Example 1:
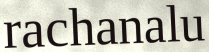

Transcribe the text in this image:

rachanalu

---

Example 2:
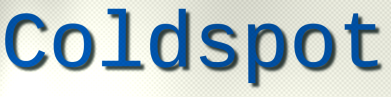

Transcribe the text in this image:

Coldspot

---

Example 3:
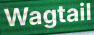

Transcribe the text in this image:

Wagtail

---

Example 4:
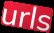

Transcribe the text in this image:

urls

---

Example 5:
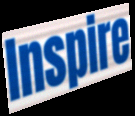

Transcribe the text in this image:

Inspire